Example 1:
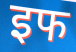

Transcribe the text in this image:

इफ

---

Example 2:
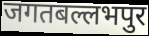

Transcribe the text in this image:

जगतबल्लभपुर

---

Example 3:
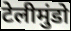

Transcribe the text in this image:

टेलीमुंडो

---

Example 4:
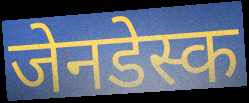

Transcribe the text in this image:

जेनडेस्क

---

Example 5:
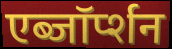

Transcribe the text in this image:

एब्जॉर्प्शन